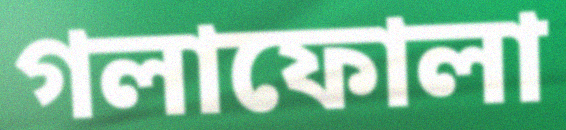
গলাফোলা